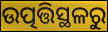
ଉତ୍ପତ୍ତିସ୍ଥଳରୁ